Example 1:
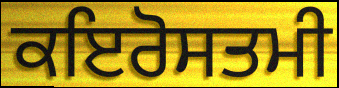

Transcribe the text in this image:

ਕਇਰੋਸਤਮੀ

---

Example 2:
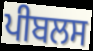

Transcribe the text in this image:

ਪੀਬਲਸ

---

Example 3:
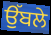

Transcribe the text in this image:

ਉੱਬਲੇ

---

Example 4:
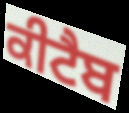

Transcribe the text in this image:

ਕੀਟੈਬ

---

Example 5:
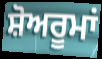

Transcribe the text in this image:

ਸ਼ੋਅਰੂਮਾਂ